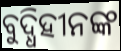
ବୁଦ୍ଧିହୀନଙ୍କ